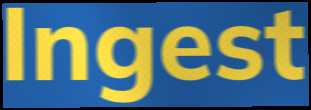
Ingest